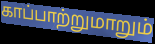
காப்பாற்றுமாறும்